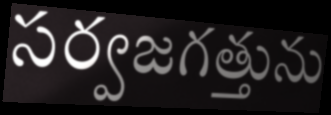
సర్వజగత్తును